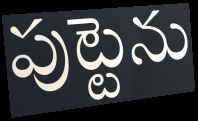
పుట్టెను